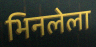
भिनलेला